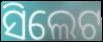
ସିଲେଟ